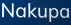
Nakupa